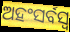
ଅହଂସର୍ବସ୍ୱ